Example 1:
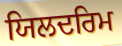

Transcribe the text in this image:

ਯਿਲਦਰਿਮ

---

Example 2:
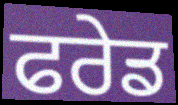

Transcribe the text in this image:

ਫਰੇਡ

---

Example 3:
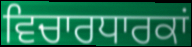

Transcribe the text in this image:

ਵਿਚਾਰਧਾਰਕਾਂ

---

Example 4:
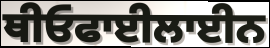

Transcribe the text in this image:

ਥੀਓਫਾਈਲਾਈਨ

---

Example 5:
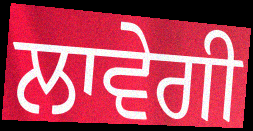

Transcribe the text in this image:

ਲਾਵੇਗੀ